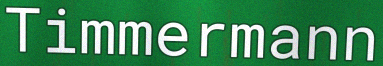
Timmermann